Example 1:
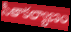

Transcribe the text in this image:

సీతాకల్యాణం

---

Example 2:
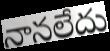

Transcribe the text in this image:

నానలేదు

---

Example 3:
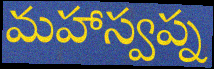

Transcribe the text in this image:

మహాస్వప్న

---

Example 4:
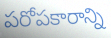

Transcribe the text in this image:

పరోపకారాన్ని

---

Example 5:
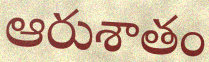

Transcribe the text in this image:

ఆరుశాతం